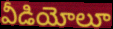
వీడియోలూ